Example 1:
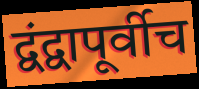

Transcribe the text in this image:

द्वंद्वापूर्वीच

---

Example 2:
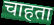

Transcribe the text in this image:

चाहता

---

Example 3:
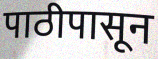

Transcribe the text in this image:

पाठीपासून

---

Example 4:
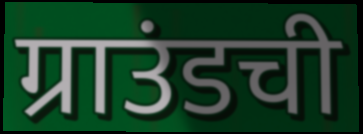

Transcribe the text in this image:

ग्राउंडची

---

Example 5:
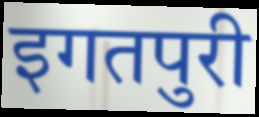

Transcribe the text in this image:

इगतपुरी